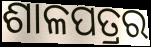
ଶାଳପତ୍ରର